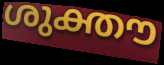
ശുക്തൗ